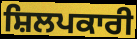
ਸ਼ਿਲਪਕਾਰੀ